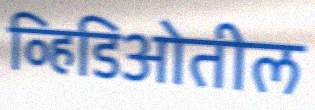
व्हिडिओतील